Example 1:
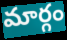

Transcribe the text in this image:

మార్గం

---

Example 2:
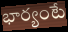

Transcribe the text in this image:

భార్యంటే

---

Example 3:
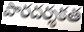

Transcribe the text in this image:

పారదర్శకత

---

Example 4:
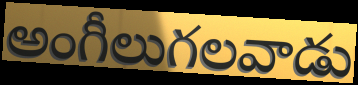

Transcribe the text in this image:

అంగీలుగలవాడు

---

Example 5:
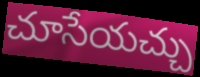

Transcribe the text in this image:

చూసేయచ్చు